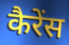
कैरेंस